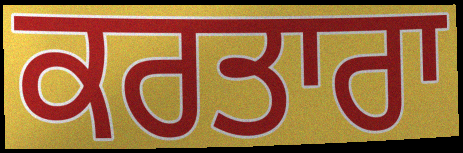
ਕਰਤਾਰਾ